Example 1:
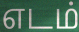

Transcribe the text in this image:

எடம்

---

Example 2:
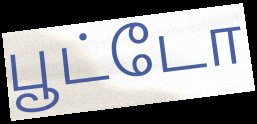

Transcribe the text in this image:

பூட்டோ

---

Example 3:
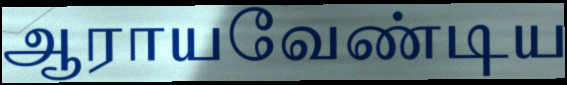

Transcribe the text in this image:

ஆராயவேண்டிய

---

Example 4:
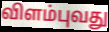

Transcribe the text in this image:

விளம்புவது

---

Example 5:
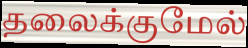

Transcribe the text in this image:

தலைக்குமேல்